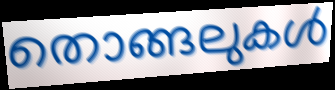
തൊങ്ങലുകൾ